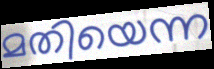
മതിയെന്ന